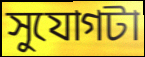
সুযোগটা